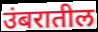
उंबरातील